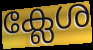
ക്ലേശ